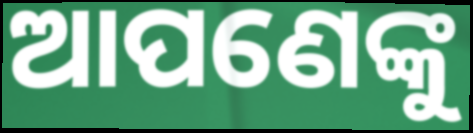
ଆପଣେଙ୍କୁ